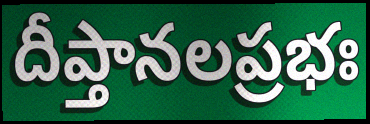
దీప్తానలప్రభః